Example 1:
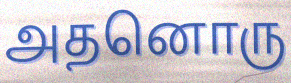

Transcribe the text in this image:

அதனொரு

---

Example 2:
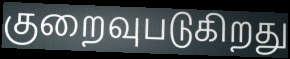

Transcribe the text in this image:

குறைவுபடுகிறது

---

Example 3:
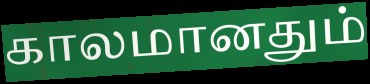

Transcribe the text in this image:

காலமானதும்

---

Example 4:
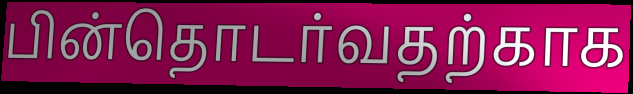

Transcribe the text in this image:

பின்தொடர்வதற்காக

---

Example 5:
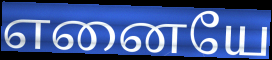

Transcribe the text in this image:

எனையே